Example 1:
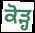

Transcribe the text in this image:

ਕੋੜ੍ਹ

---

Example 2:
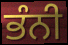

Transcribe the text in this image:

ਭੰਨੀ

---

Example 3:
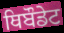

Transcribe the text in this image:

ਥਿਬੌਡੇਟ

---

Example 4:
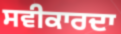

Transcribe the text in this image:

ਸਵੀਕਾਰਦਾ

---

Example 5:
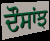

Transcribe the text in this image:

ਦੌਸਾਂਝ